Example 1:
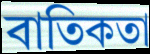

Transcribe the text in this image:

বাতিকতা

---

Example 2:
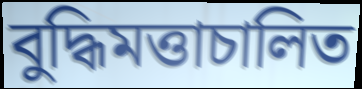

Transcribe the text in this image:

বুদ্ধিমত্তাচালিত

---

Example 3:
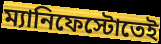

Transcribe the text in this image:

ম্যানিফেস্টোতেই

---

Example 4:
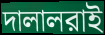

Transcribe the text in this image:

দালালরাই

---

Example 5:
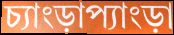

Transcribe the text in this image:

চ্যাংড়াপ্যাংড়া